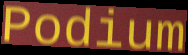
Podium